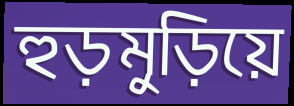
হুড়মুড়িয়ে